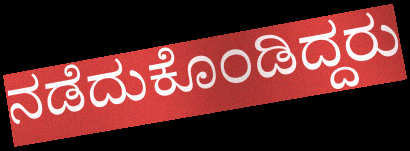
ನಡೆದುಕೊಂಡಿದ್ದರು